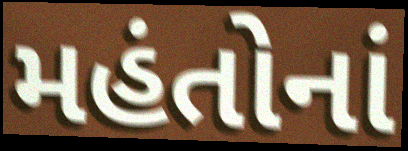
મહંતોનાં